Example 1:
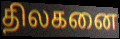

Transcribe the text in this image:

திலகனை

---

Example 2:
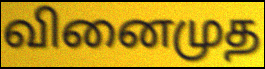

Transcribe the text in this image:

வினைமுத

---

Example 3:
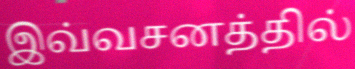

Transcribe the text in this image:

இவ்வசனத்தில்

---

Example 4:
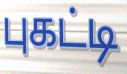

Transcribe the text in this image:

புகட்டி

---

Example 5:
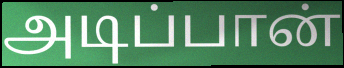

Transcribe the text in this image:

அடிப்பான்